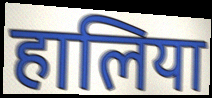
हालिया